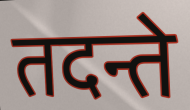
तदन्ते